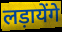
लड़ायेंगे